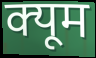
क्यूम